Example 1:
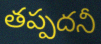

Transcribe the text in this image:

తప్పదనీ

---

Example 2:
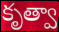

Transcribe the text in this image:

కృత్వా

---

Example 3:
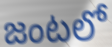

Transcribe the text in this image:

జంటలో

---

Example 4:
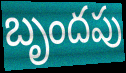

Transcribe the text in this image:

బృందపు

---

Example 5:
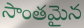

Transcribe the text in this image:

సాంతమైన